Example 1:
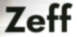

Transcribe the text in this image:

Zeff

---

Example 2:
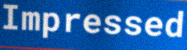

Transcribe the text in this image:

Impressed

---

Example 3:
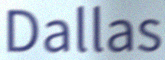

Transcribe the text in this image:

Dallas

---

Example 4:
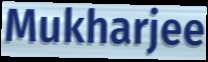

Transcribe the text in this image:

Mukharjee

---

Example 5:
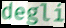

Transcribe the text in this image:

degli